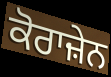
ਕੋਰਾਜ਼ੇਨ